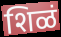
शिळं